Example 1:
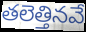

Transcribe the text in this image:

తలెత్తినవే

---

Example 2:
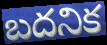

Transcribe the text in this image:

బదనిక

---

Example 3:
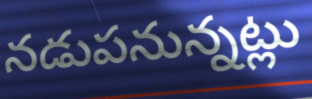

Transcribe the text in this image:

నడుపనున్నట్లు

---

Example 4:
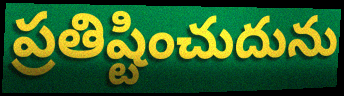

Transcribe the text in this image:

ప్రతిష్టించుదును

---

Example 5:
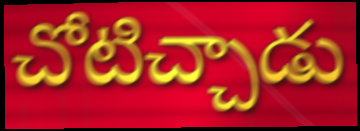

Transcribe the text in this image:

చోటిచ్చాడు